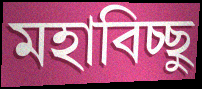
মহাবিচ্ছু